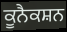
ਕੂਨੈਕਸ਼ਨ